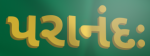
પરાનંદઃ